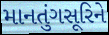
માનતુંગસૂરિને